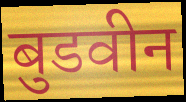
बुडवीन